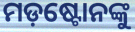
ମଡ଼ଷ୍ଟୋନଙ୍କୁ